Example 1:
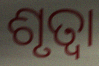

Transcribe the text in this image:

ଶୃତ୍ୱା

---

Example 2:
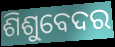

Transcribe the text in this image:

ଶିଶୁବେଦର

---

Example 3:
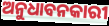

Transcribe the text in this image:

ଅନୁଧାବନକାରୀ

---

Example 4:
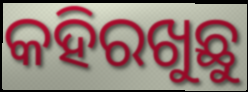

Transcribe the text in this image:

କହିରଖୁଛୁ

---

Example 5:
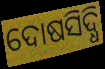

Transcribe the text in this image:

ଦୋଷସିଦ୍ଧି